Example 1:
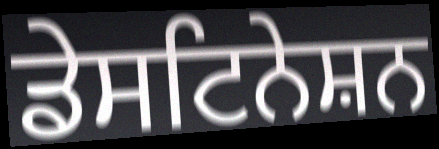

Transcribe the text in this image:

ਡੇਸਟਿਨੇਸ਼ਨ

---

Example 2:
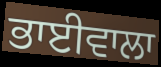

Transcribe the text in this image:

ਭਾਈਵਾਲਾ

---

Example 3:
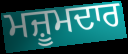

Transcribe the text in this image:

ਮਜ਼ੂਮਦਾਰ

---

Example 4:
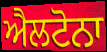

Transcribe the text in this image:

ਐਲਟੋਨਾ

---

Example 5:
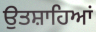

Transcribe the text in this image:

ਉਤਸ਼ਾਹਿਆਂ